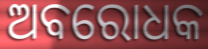
ଅବରୋଧକ